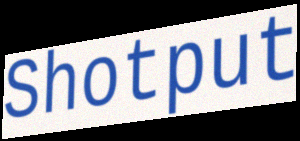
Shotput